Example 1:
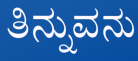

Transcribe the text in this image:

ತಿನ್ನುವನು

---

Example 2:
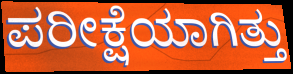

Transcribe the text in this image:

ಪರೀಕ್ಷೆಯಾಗಿತ್ತು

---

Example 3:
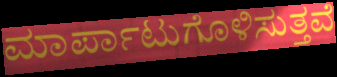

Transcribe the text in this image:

ಮಾರ್ಪಾಟುಗೊಳಿಸುತ್ತವೆ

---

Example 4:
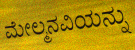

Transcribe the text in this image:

ಮೇಲ್ಮನವಿಯನ್ನು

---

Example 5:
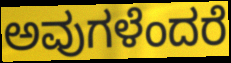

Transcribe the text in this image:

ಅವುಗಳೆಂದರೆ